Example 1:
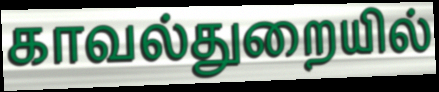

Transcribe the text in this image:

காவல்துறையில்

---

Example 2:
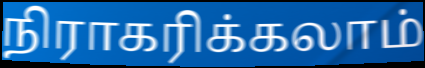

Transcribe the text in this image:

நிராகரிக்கலாம்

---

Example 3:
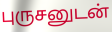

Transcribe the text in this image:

புருசனுடன்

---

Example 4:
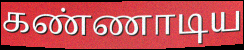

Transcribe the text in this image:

கண்ணாடிய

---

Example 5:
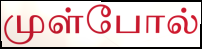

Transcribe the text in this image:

முள்போல்